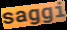
saggi